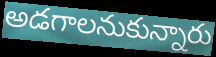
అడగాలనుకున్నారు